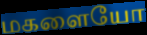
மகளையோ